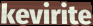
kevirite